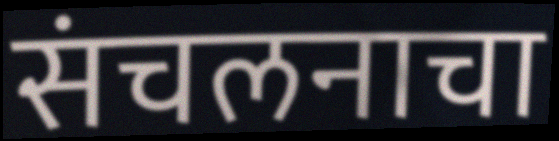
संचलनाचा